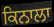
ਕਿਨਾਲਾ